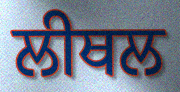
ਲੀਥਲ